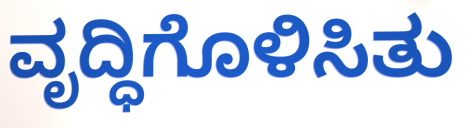
ವೃದ್ಧಿಗೊಳಿಸಿತು